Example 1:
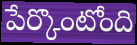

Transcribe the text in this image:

పేర్కొంటోంది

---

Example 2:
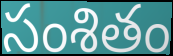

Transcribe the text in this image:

సంశితం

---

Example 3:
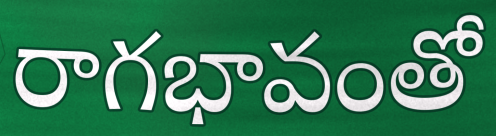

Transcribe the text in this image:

రాగభావంతో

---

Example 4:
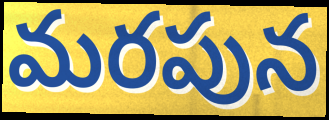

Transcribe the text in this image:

మరపున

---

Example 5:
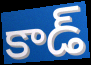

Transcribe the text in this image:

కాడ్